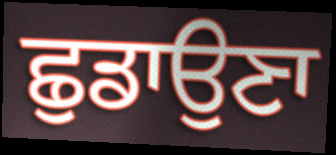
ਛੁਡਾਉਣਾ